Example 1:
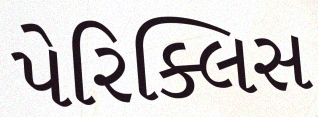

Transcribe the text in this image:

પેરિક્લિસ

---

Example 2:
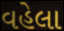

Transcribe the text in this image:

વહેલા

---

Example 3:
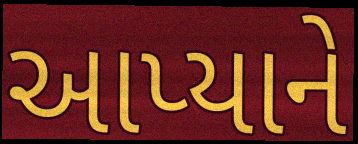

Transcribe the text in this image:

આપ્યાને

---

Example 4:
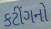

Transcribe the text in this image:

કટીંગનો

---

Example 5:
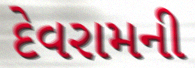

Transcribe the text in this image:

દેવરામની